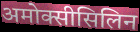
अमोक्सीसिलिन